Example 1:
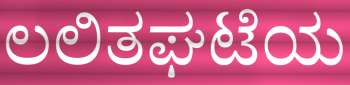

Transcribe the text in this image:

ಲಲಿತಘಟೆಯ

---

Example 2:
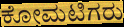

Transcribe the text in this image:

ಕೋಮಟಿಗರು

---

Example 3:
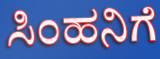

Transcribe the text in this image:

ಸಿಂಹನಿಗೆ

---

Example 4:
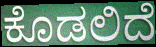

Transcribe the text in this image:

ಕೊಡಲಿದೆ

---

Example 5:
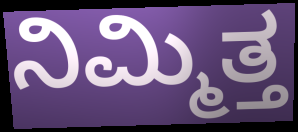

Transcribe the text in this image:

ನಿಮ್ಮಿತ್ತ